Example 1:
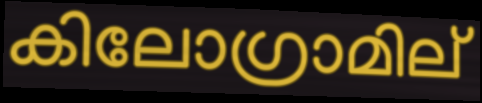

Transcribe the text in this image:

കിലോഗ്രാമില്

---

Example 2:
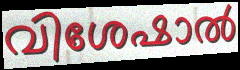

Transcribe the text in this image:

വിശേഷാൽ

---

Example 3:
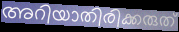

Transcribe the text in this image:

അറിയാതിരിക്കരുത്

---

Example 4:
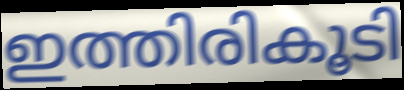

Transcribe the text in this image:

ഇത്തിരികൂടി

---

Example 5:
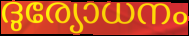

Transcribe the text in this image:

ദുര്യോധനം